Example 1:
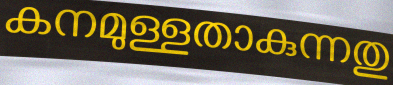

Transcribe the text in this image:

കനമുള്ളതാകുന്നതു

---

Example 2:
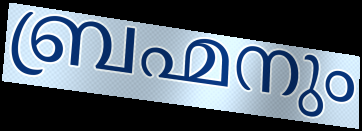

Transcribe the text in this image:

ബ്രഹ്മനും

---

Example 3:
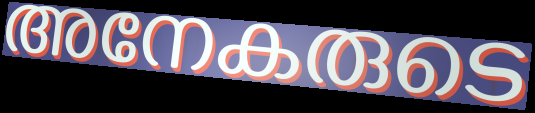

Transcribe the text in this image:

അനേകരുടെ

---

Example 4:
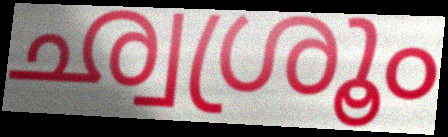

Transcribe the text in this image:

ഛ്വശ്രൂം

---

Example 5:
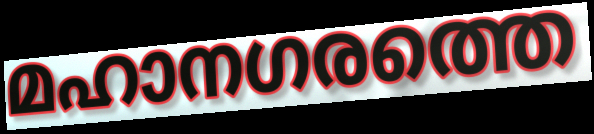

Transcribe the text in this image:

മഹാനഗരത്തെ